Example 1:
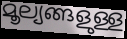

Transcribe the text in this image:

മൂല്യങ്ങളുള്ള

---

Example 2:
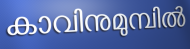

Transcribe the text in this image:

കാവിനുമുമ്പിൽ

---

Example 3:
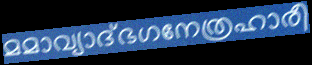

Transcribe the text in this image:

മമാവ്യാദ്ഭഗനേത്രഹാരീ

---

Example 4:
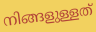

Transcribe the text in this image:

നിങ്ങളുള്ളത്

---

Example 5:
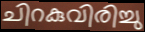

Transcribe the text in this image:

ചിറകുവിരിച്ചു